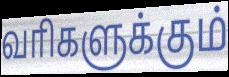
வரிகளுக்கும்